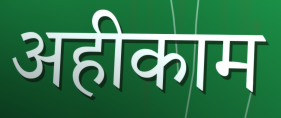
अहीकाम